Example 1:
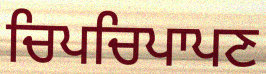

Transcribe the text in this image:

ਚਿਪਚਿਪਾਪਣ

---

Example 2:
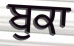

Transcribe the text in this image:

ਬੁਕਾ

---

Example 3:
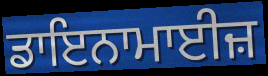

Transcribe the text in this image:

ਡਾਇਨਾਮਾਈਜ਼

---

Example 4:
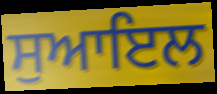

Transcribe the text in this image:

ਸੁਆਇਲ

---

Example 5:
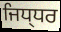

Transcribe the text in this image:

ਜਿਧ੍ਧਰ